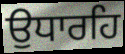
ਉਧਾਰਹਿ